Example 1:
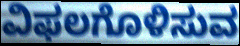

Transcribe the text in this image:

ವಿಫಲಗೊಳಿಸುವ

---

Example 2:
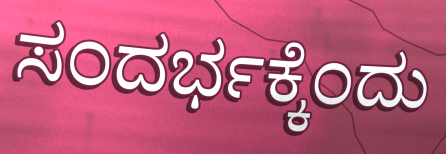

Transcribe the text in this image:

ಸಂದರ್ಭಕ್ಕೆಂದು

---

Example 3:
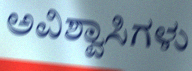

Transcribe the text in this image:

ಅವಿಶ್ವಾಸಿಗಳು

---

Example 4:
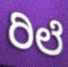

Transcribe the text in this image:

ರಿಲೆ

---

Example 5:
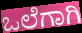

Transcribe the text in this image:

ಒಲೆಗಾಗಿ